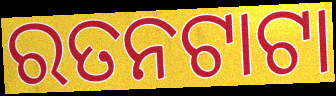
ରତନଟାଟା